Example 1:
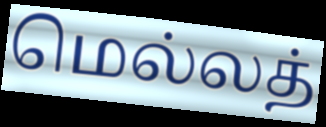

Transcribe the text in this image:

மெல்லத்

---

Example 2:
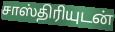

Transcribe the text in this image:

சாஸ்திரியுடன்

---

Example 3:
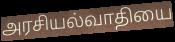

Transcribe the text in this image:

அரசியல்வாதியை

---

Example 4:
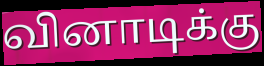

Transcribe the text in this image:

வினாடிக்கு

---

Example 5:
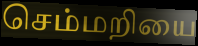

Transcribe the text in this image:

செம்மறியை